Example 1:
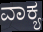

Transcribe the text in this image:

ವಾಕ್ಯ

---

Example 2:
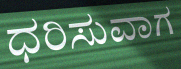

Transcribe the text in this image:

ಧರಿಸುವಾಗ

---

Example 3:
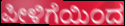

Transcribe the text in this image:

ಪೀಳಿಗೆಯಿಂದ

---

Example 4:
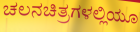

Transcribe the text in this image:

ಚಲನಚಿತ್ರಗಳಲ್ಲಿಯೂ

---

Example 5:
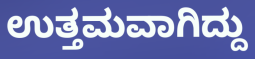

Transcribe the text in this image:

ಉತ್ತಮವಾಗಿದ್ದು